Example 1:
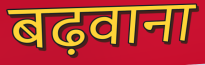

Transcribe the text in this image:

बढ़वाना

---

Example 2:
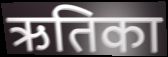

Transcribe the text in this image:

ऋतिका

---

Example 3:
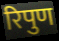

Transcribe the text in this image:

रिपुण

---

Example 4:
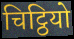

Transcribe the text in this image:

चिट्ठियो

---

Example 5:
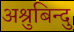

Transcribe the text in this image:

अश्रुबिन्दु